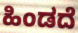
ಹಿಂಡದೆ